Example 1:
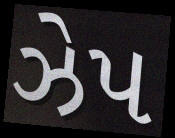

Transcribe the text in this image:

ઝેપ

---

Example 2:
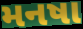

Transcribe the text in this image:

મનષા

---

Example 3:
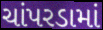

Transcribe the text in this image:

ચાંપરડામાં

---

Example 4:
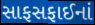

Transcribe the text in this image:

સાફસફાઈનાં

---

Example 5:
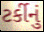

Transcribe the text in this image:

ટર્કીનું